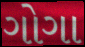
ગોગા